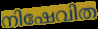
നിഷേവിത